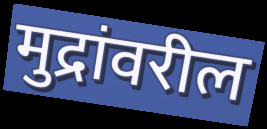
मुद्रांवरील